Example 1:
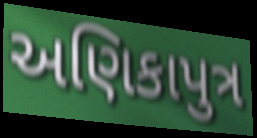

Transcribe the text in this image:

અણિકાપુત્ર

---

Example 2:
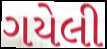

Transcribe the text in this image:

ગયેલી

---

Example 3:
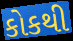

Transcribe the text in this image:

કોકથી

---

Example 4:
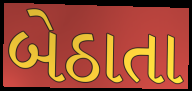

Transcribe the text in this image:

બેઠાતા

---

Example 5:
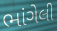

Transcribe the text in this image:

ભાંગેલી